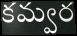
కమ్వర